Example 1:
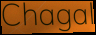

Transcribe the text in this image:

Chagal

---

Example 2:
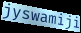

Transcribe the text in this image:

jyswamiji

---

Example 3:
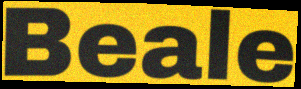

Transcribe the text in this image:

Beale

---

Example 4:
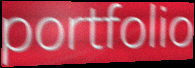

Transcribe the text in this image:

portfolio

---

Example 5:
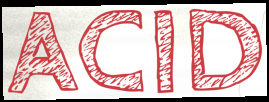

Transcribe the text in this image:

ACID